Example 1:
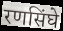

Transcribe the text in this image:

रणसिंघे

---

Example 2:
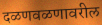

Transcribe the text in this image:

दळणवळणावरील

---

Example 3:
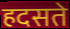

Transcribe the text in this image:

हदसते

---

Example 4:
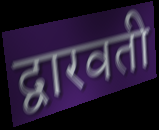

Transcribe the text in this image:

द्वारवती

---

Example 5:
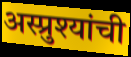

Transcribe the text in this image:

अस्प्रुश्यांची